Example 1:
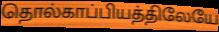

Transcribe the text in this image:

தொல்காப்பியத்திலேயே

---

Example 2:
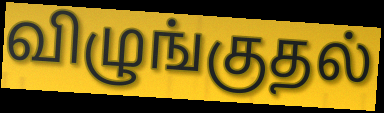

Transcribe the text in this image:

விழுங்குதல்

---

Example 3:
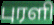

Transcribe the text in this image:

புரளி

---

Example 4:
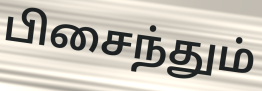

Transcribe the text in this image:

பிசைந்தும்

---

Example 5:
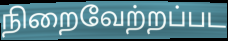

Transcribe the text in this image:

நிறைவேற்றப்பட